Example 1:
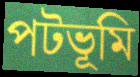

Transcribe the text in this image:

পটভূমি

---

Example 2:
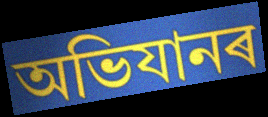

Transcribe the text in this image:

অভিযানৰ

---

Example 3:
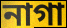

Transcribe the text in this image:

নাগা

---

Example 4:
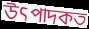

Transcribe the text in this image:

উৎপাদকত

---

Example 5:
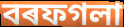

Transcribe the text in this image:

বৰফগলা